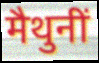
मैथुनीं